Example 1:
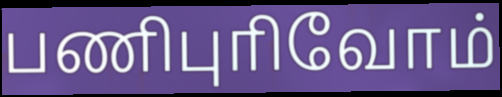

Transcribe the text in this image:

பணிபுரிவோம்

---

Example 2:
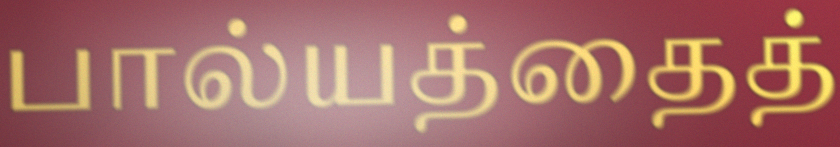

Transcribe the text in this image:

பால்யத்தைத்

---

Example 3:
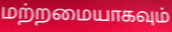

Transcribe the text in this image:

மற்றமையாகவும்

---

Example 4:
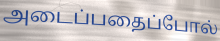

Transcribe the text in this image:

அடைப்பதைப்போல்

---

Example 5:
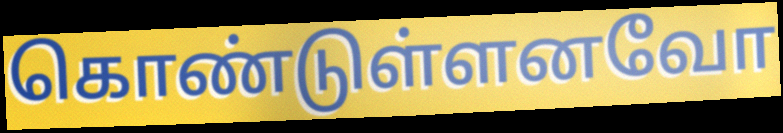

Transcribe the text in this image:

கொண்டுள்ளனவோ